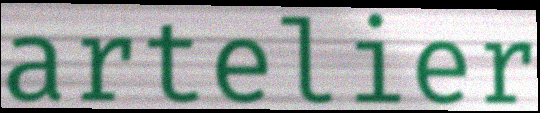
artelier